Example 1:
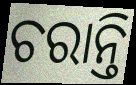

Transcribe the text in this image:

ଚରାନ୍ତି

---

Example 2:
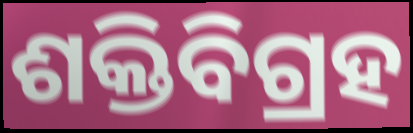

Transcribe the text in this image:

ଶକ୍ତିବିଗ୍ରହ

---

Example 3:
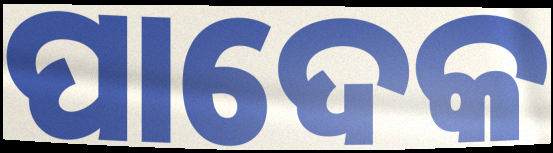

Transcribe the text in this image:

ପାଦେକ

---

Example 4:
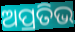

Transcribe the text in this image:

ଅପ୍ରତିଭ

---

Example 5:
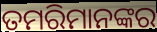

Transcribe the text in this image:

ତମରିମାନଙ୍କର